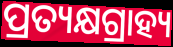
ପ୍ରତ୍ୟକ୍ଷଗ୍ରାହ୍ୟ